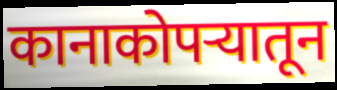
कानाकोपर्‍यातून